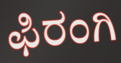
ಫಿರಂಗಿ